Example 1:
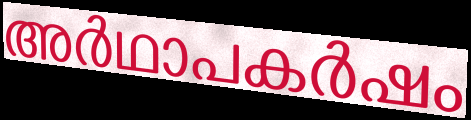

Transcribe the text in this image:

അർഥാപകർഷം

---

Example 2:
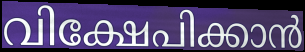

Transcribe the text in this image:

വിക്ഷേപിക്കാൻ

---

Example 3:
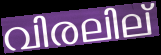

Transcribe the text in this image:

വിരലില്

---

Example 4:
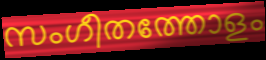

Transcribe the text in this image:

സംഗീതത്തോളം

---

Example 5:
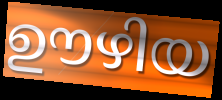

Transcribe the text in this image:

ഊഴിയ